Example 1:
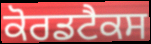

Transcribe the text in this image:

ਕੋਰਡਟੈਕਸ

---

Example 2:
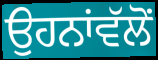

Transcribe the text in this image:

ਉਹਨਾਂਵੱਲੋਂ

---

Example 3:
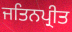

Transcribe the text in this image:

ਜਤਿਨਪ੍ਰੀਤ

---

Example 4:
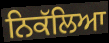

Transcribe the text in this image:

ਨਿਕੱਲਿਆ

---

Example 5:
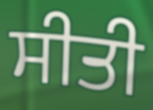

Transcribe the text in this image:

ਸੀਤੀ